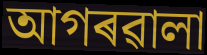
আগৰৱালা